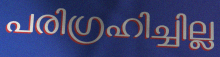
പരിഗ്രഹിച്ചില്ല